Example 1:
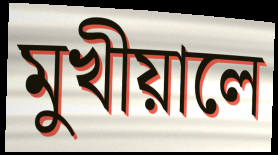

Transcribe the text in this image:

মুখীয়ালে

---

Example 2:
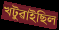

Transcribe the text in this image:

খটুৱাইছিল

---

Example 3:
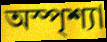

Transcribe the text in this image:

অস্পৃশ্যা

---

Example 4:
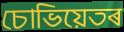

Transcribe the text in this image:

চোভিয়েতৰ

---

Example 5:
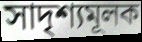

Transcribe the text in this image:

সাদৃশ্যমূলক